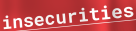
insecurities